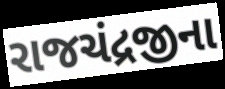
રાજચંદ્રજીના